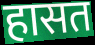
हासत